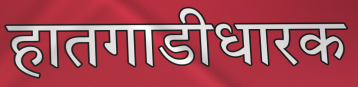
हातगाडीधारक